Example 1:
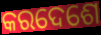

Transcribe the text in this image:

କରଦେଶେ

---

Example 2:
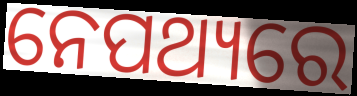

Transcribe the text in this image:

ନେପଥ୍ୟରେ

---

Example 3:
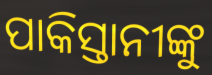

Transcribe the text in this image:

ପାକିସ୍ତାନୀଙ୍କୁ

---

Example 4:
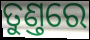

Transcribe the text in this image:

ତୁଣ୍ତରେ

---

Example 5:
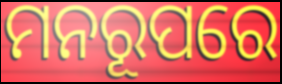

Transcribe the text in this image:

ମନରୂପରେ